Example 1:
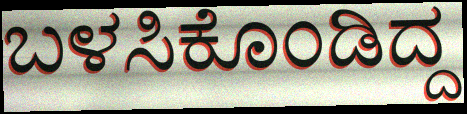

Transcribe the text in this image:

ಬಳಸಿಕೊಂಡಿದ್ದ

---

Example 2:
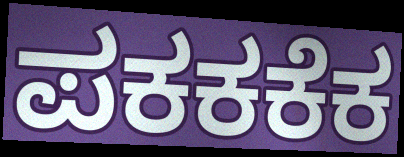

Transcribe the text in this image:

ಪಕಕಕೆಕ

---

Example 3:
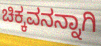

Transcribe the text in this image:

ಚಿಕ್ಕವನನ್ನಾಗಿ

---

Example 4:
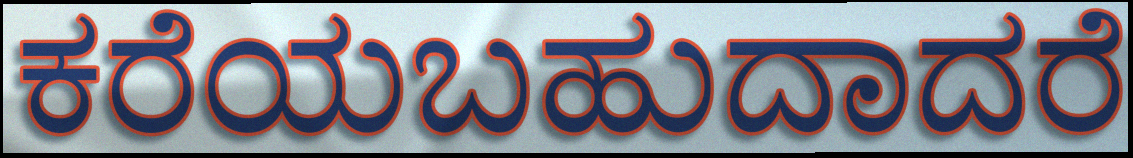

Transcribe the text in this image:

ಕರೆಯಬಹುದಾದರೆ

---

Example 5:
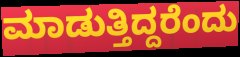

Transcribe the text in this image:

ಮಾಡುತ್ತಿದ್ದರೆಂದು